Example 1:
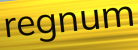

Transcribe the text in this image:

regnum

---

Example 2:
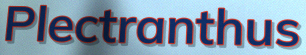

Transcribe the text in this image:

Plectranthus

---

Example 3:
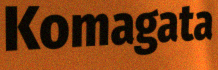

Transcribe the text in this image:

Komagata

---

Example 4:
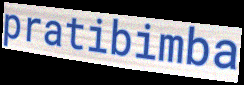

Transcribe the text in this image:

pratibimba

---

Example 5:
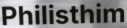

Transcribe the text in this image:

Philisthim